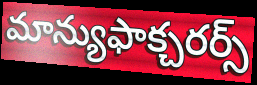
మాన్యుఫాక్చరర్స్